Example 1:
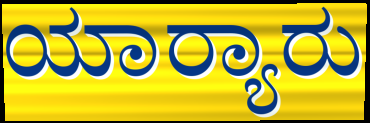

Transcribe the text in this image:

ಯಾರ‍್ಯಾರು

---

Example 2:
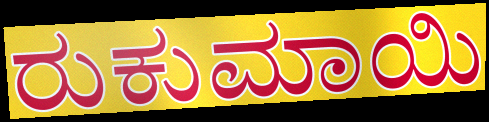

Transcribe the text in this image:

ರುಕುಮಾಯಿ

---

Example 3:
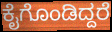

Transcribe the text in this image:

ಕೈಗೊಂಡಿದ್ದರೆ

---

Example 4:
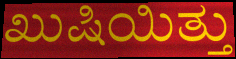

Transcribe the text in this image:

ಖುಷಿಯಿತ್ತು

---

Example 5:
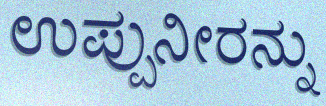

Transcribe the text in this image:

ಉಪ್ಪುನೀರನ್ನು